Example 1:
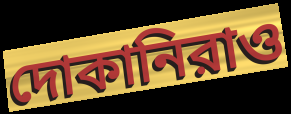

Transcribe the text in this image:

দোকানিরাও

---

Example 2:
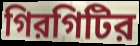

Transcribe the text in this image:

গিরগিটির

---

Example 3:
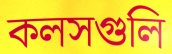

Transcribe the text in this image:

কলসগুলি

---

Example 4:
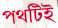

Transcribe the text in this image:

পথটিই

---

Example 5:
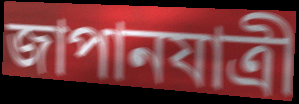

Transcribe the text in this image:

জাপানযাত্রী